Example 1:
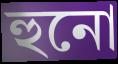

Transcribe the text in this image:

হুনো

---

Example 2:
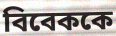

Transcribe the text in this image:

বিবেককে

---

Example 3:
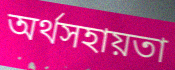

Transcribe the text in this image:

অর্থসহায়তা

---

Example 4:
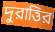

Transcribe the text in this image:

দুরাত্তির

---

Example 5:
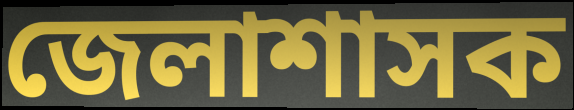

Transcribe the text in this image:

জেলাশাসক